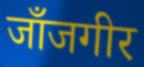
जाँजगीर